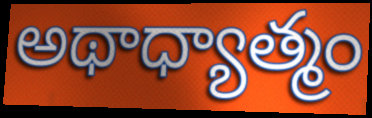
అథాధ్యాత్మం